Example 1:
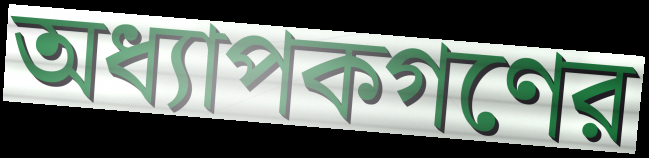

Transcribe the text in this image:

অধ্যাপকগণের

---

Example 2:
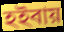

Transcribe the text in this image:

হইবায়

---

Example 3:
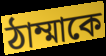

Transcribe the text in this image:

ঠাম্মাকে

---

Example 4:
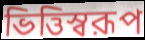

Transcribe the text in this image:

ভিত্তিস্বরূপ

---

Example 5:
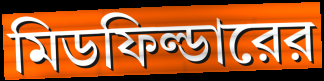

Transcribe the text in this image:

মিডফিল্ডারের